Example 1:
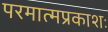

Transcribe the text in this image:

परमात्मप्रकाशः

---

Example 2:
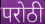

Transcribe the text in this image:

परोठी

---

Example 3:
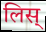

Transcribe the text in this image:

लिस्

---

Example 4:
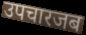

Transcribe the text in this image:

उपचारजब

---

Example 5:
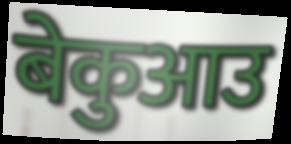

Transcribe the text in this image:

बेकुआउ